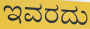
ಇವರದು